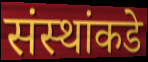
संस्थांकडे